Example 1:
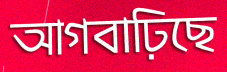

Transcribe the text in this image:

আগবাঢ়িছে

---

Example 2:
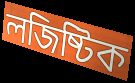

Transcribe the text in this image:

লজিষ্টিক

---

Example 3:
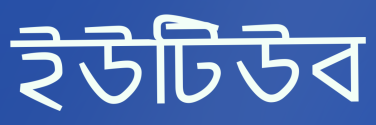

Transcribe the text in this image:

ইউটিউব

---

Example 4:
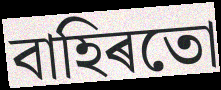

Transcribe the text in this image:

বাহিৰতো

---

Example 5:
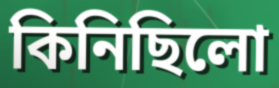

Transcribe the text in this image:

কিনিছিলো